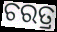
ଚରତ୍ର